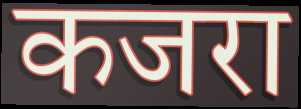
कजरा